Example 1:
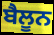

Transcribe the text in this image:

ਬੈਲੂਨ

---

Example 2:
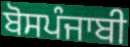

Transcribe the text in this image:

ਬੋਸਪੰਜਾਬੀ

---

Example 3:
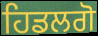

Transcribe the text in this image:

ਹਿਡਲਗੋ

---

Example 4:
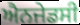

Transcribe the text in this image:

ਐਨਜੇਡਸੀ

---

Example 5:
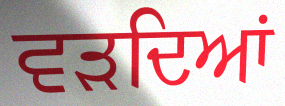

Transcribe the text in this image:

ਵੜਦਿਆਂ